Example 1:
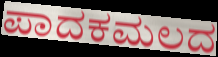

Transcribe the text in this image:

ಪಾದಕಮಲದ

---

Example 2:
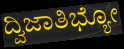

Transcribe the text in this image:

ದ್ವಿಜಾತಿಭ್ಯೋ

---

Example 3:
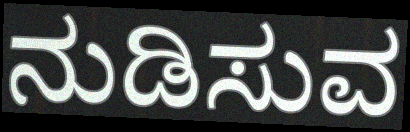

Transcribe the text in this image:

ನುಡಿಸುವ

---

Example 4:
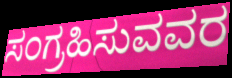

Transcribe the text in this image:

ಸಂಗ್ರಹಿಸುವವರ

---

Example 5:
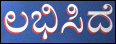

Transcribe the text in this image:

ಲಭಿಸಿದೆ